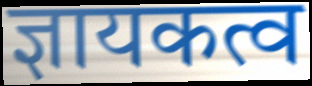
ज्ञायकत्व